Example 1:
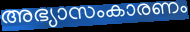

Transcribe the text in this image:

അഭ്യാസംകാരണം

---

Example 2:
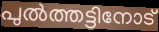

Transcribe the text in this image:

പുൽത്തട്ടിനോട്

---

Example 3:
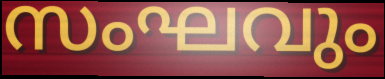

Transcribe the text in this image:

സംഘവും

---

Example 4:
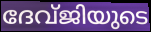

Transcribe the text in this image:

ദേവ്ജിയുടെ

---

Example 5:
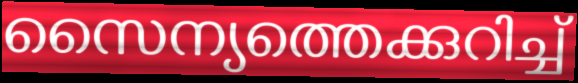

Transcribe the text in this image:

സൈന്യത്തെക്കുറിച്ച്